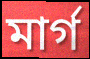
মার্গ